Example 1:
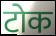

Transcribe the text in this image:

टोक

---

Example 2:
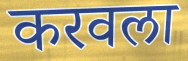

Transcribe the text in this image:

करवला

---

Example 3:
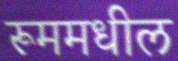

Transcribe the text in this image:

रूममधील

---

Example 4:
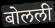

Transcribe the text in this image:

बोलली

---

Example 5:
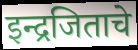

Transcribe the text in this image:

इन्द्रजिताचे